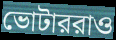
ভোটাররাও